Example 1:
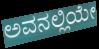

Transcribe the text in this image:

ಅವನಲ್ಲಿಯೇ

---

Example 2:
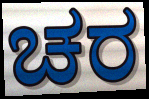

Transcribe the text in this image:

ಚರ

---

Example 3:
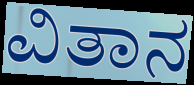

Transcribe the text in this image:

ವಿತಾನ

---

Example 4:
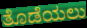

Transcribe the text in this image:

ತೊಡೆಯಲು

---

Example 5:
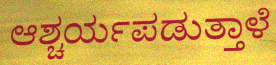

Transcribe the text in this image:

ಆಶ್ಚರ್ಯಪಡುತ್ತಾಳೆ